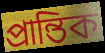
প্রান্তিক